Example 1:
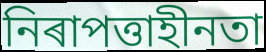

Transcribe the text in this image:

নিৰাপত্তাহীনতা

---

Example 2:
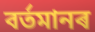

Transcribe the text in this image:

বৰ্তমানৰ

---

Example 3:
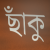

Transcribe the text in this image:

ছাঁকু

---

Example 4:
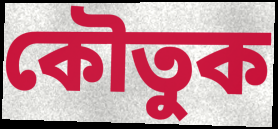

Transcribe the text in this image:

কৌতুক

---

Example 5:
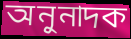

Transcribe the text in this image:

অনুনাদক